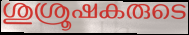
ശുശ്രൂഷകരുടെ